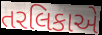
તરલિકાએ